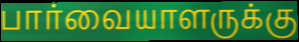
பார்வையாளருக்கு